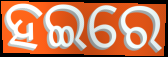
ହଇରେ